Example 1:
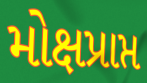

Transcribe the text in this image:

મોક્ષપ્રાપ્ત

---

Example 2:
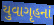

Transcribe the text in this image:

યુવાગૃહનાં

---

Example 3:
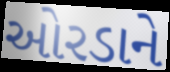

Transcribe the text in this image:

ઓરડાને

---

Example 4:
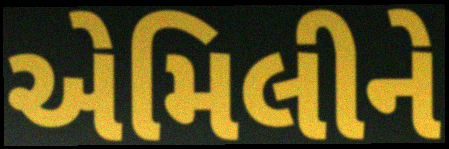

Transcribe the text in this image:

એમિલીને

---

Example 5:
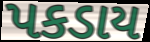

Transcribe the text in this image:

પકડાય